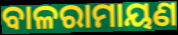
ବାଳରାମାୟଣ